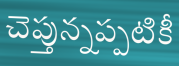
చెప్తున్నప్పటికీ